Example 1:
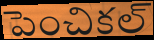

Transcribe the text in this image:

పెంచికల్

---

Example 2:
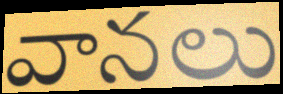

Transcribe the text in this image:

వానలు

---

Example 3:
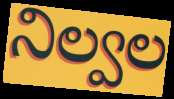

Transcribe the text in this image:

నిల్వల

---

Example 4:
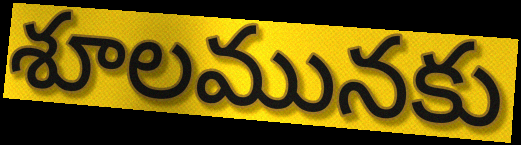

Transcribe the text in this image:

శూలమునకు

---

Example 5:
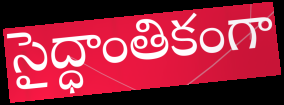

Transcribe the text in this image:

సైద్ధాంతికంగా